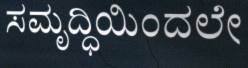
ಸಮೃದ್ಧಿಯಿಂದಲೇ